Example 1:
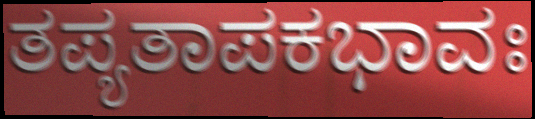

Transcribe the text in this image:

ತಪ್ಯತಾಪಕಭಾವಃ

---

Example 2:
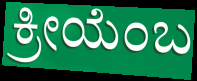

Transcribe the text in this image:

ಕ್ರೀಯೆಂಬ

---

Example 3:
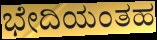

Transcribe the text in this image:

ಭೇದಿಯಂತಹ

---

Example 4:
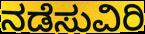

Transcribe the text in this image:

ನಡೆಸುವಿರಿ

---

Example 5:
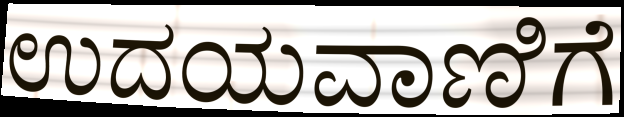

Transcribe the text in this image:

ಉದಯವಾಣಿಗೆ